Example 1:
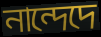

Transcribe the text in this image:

নান্দেদে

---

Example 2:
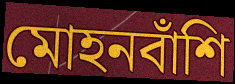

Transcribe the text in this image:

মোহনবাঁশি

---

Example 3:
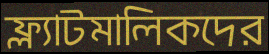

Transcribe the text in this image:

ফ্ল্যাটমালিকদের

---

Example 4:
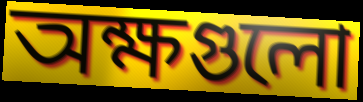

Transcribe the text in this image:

অক্ষগুলো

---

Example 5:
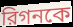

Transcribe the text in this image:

রিগনকে